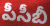
పీసీబీ